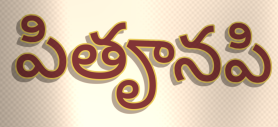
పితౄనపి